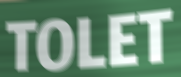
TOLET